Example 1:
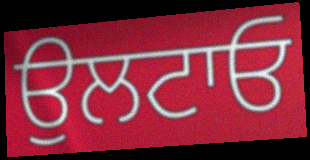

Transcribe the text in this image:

ਉਲਟਾਓ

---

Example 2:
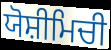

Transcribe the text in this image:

ਯੋਸ਼ੀਮਿਚੀ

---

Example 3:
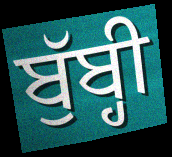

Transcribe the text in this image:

ਬੁੱਬ੍ਹੀ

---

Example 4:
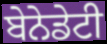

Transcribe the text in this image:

ਬੇਨੇਡੇਟੀ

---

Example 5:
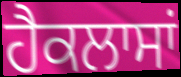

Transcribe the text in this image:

ਹੈਕਲਾਸਾਂ